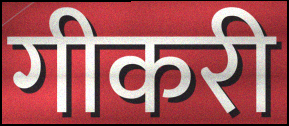
गीकरी